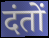
दंतों